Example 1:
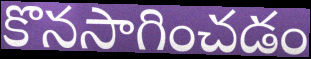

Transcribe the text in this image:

కొనసాగించడం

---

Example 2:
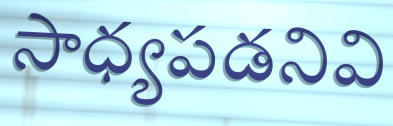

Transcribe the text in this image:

సాధ్యపడనివి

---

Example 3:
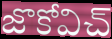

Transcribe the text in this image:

జొకోవిచ్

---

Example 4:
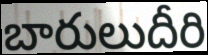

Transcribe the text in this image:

బారులుదీరి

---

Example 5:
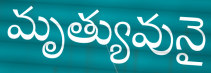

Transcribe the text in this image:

మృత్యువునై